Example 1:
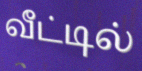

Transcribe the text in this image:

வீட்டில்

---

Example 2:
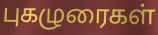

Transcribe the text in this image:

புகழுரைகள்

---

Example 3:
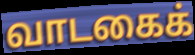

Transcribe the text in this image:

வாடகைக்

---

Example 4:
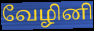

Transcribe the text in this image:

வேழினி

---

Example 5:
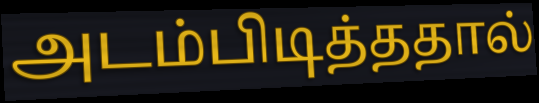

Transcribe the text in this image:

அடம்பிடித்ததால்